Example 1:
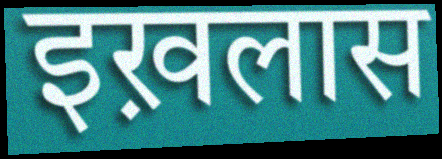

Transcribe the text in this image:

इख़लास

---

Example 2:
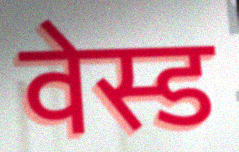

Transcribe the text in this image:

वेस्ड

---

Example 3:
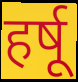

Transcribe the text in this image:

हर्षू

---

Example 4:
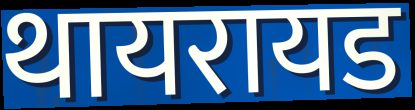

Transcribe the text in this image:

थायरायड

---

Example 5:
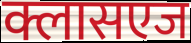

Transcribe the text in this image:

क्लासएज